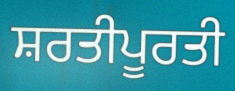
ਸ਼ਰਤੀਪੂਰਤੀ